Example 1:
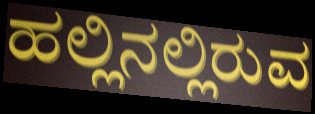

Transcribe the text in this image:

ಹಲ್ಲಿನಲ್ಲಿರುವ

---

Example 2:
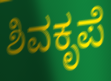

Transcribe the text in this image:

ಶಿವಕೃಪೆ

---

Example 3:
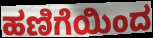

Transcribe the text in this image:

ಹಣಿಗೆಯಿಂದ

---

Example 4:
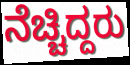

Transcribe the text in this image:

ನೆಚ್ಚಿದ್ದರು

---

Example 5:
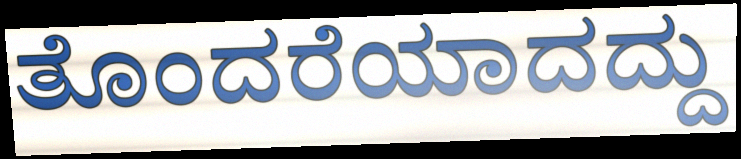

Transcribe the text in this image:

ತೊಂದರೆಯಾದದ್ದು